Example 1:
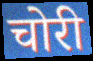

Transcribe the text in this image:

चोरी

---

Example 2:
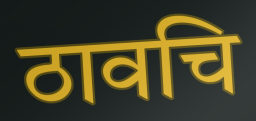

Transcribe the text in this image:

ठावचि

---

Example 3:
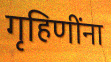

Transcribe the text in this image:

गृहिणींना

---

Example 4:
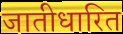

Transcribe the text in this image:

जातीधारित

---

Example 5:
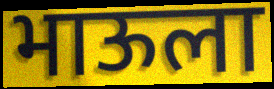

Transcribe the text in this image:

भाऊला